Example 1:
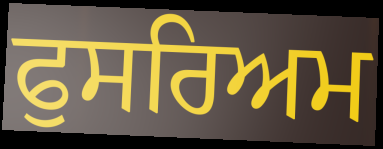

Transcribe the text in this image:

ਫੁਸਰਿਅਮ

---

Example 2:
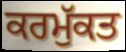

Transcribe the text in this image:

ਕਰਮੁੱਕਤ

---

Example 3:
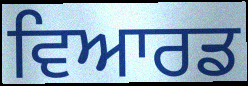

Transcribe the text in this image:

ਵਿਆਰਡ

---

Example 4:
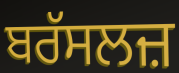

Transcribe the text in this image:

ਬਰੱਸਲਜ਼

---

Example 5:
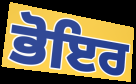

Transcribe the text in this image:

ਭੋਇਰ